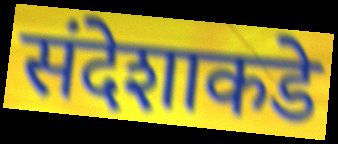
संदेशाकडे